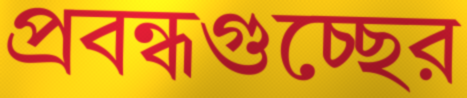
প্রবন্ধগুচ্ছের